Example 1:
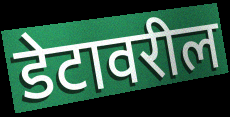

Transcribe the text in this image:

डेटावरील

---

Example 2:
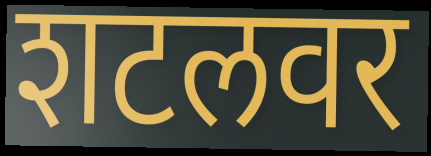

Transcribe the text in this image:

शटलवर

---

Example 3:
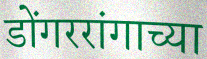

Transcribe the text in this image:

डोंगररांगाच्या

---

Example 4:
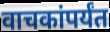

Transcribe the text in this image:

वाचकांपर्यंत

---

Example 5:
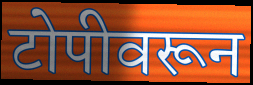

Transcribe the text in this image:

टोपीवरून